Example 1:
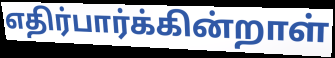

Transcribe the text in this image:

எதிர்பார்க்கின்றாள்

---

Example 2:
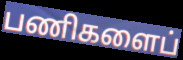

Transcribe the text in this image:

பணிகளைப்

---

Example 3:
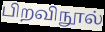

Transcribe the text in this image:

பிறவிநூல்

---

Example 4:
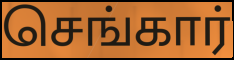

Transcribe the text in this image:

செங்கார்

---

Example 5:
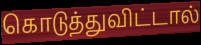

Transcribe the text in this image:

கொடுத்துவிட்டால்